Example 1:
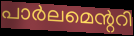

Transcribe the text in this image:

പാർലമെന്ററി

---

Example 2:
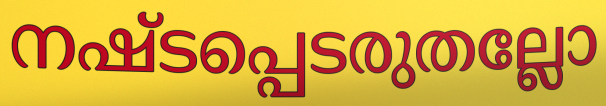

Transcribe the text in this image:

നഷ്ടപ്പെടരുതല്ലോ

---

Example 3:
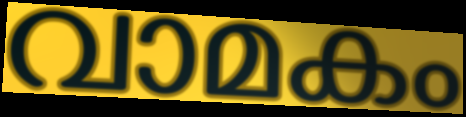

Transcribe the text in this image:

വാമകം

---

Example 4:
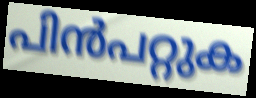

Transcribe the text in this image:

പിൻപറ്റുക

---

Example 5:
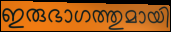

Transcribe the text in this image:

ഇരുഭാഗത്തുമായി